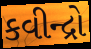
કવીન્દ્રો